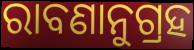
ରାବଣାନୁଗ୍ରହ